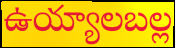
ఉయ్యాలబల్ల